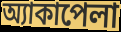
অ্যাকাপেলা